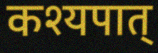
कश्यपात्